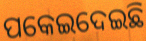
ପକେଇଦେଇଛି